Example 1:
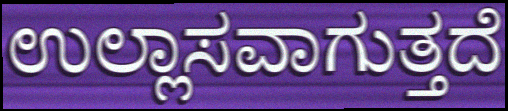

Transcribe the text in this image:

ಉಲ್ಲಾಸವಾಗುತ್ತದೆ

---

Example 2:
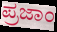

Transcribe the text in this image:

ಪ್ರಜಾಂ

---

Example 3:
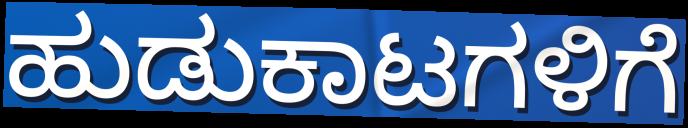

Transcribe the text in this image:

ಹುಡುಕಾಟಗಳಿಗೆ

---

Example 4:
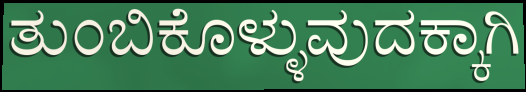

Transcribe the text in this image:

ತುಂಬಿಕೊಳ್ಳುವುದಕ್ಕಾಗಿ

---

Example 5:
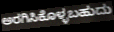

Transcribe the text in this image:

ಅರಗಿಸಿಕೊಳ್ಳಬಹುದು